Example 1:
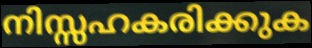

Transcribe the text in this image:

നിസ്സഹകരിക്കുക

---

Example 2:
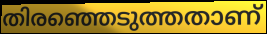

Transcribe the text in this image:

തിരഞ്ഞെടുത്തതാണ്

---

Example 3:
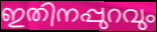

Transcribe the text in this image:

ഇതിനപ്പുറവും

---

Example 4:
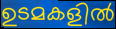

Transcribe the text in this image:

ഉടമകളിൽ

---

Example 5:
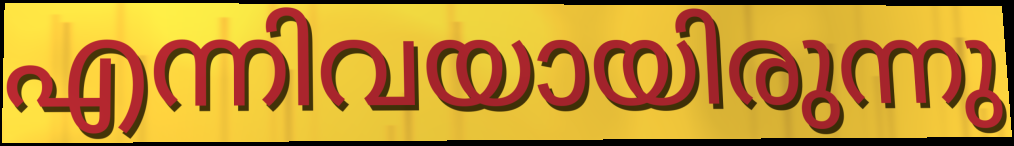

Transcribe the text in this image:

എന്നിവയായിരുന്നു